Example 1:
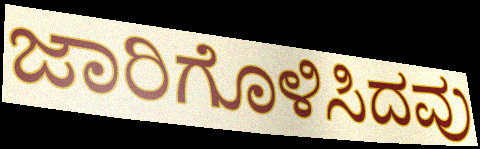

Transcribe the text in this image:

ಜಾರಿಗೊಳಿಸಿದವು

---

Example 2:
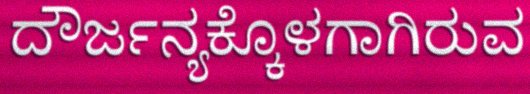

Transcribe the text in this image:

ದೌರ್ಜನ್ಯಕ್ಕೊಳಗಾಗಿರುವ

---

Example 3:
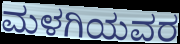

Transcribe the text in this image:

ಮಳಗಿಯವರ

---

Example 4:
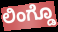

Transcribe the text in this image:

ಲಿಂಗ್ಡೊ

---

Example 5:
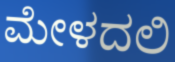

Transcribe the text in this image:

ಮೇಳದಲಿ